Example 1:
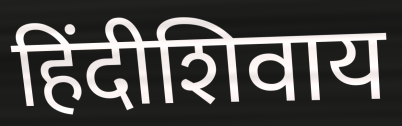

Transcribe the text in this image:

हिंदीशिवाय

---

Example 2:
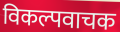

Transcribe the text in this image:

विकल्पवाचक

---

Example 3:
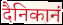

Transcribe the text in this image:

दैनिकानं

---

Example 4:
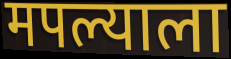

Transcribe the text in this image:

मपल्याला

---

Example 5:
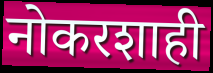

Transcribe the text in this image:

नोकरशाही